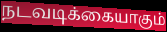
நடவடிக்கையாகும்